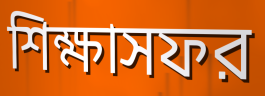
শিক্ষাসফর